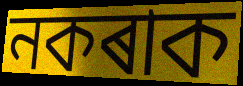
নকৰাক